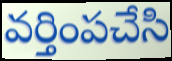
వర్తింపచేసి